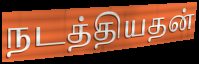
நடத்தியதன்